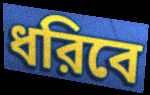
ধরিবে